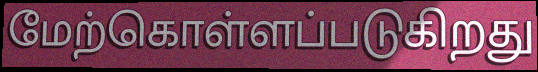
மேற்கொள்ளப்படுகிறது